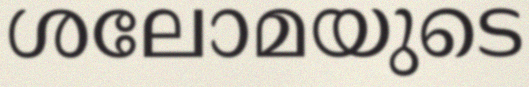
ശലോമയുടെ